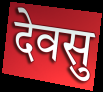
देवसु